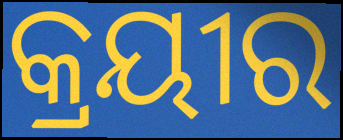
କ୍ରୟୀର